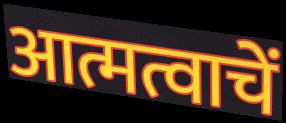
आत्मत्वाचें